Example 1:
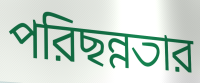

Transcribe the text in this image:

পরিছন্নতার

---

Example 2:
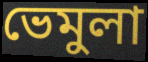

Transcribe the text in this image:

ভেমুলা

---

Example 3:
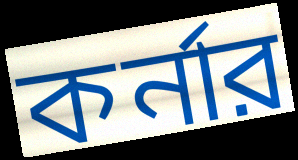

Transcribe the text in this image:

কর্নার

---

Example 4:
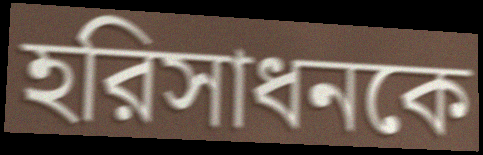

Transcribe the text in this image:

হরিসাধনকে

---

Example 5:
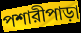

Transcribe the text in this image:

পশারীপাড়া